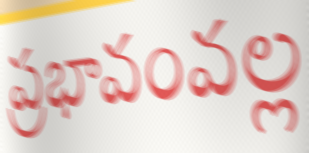
ప్రభావంవల్ల